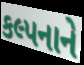
કલ્પનાને